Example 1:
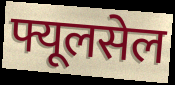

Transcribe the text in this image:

फ्यूलसेल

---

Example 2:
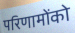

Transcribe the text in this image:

परिणामोंको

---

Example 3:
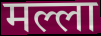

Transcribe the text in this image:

मल्‍ला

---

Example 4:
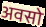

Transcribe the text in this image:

अवसो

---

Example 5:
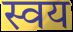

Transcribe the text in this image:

स्वय